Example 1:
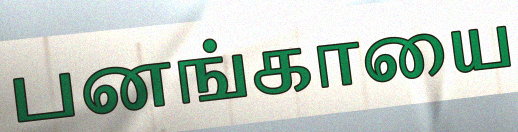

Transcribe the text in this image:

பனங்காயை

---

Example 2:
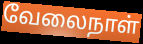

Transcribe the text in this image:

வேலைநாள்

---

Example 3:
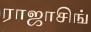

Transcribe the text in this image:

ராஜாசிங்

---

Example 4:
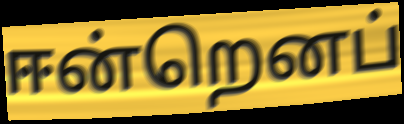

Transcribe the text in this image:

ஈன்றெனப்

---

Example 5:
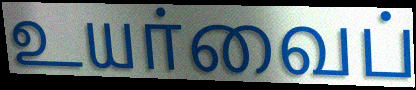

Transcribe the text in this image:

உயர்வைப்